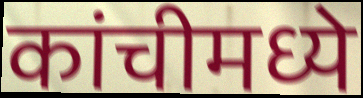
कांचीमध्ये